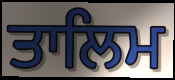
ਤਾਲਿਮ